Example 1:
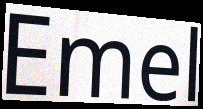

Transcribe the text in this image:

Emel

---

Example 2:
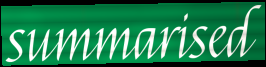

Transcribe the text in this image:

summarised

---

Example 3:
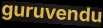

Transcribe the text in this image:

guruvendu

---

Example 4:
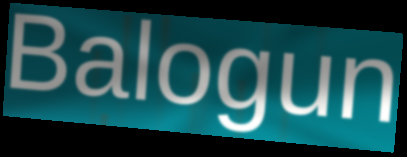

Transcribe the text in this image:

Balogun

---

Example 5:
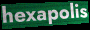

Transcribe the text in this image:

hexapolis